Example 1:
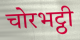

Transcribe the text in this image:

चोरभट्ठी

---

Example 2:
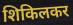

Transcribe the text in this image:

शिकिलकर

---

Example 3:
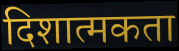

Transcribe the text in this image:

दिशात्मकता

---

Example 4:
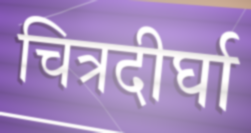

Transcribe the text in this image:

चित्रदीर्घा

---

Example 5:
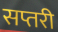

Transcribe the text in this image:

सप्तरी